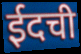
ईदची